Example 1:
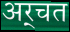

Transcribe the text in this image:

अर्चत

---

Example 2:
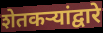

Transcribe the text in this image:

शेतकऱ्यांद्वारे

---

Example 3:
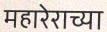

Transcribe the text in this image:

महारेराच्या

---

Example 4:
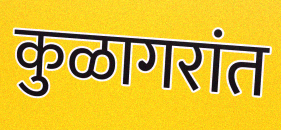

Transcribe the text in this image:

कुळागरांत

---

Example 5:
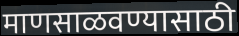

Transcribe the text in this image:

माणसाळवण्यासाठी